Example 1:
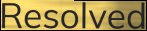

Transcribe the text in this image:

Resolved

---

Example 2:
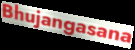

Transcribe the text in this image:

Bhujangasana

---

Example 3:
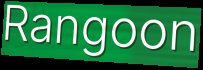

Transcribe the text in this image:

Rangoon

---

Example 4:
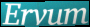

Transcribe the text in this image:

Ervum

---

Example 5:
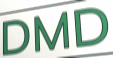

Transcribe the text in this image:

DMD